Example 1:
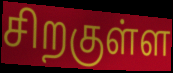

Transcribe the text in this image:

சிறகுள்ள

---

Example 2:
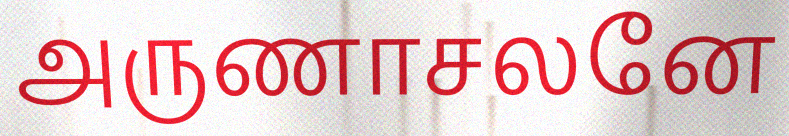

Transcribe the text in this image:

அருணாசலனே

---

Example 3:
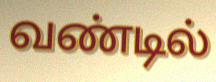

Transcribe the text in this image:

வண்டில்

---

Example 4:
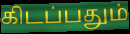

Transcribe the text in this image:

கிடப்பதும்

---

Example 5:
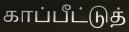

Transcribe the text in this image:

காப்பீட்டுத்